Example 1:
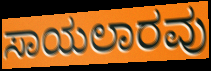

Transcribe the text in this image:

ಸಾಯಲಾರವು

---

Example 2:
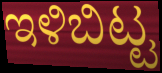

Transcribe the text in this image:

ಇಳಿಬಿಟ್ಟ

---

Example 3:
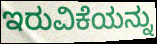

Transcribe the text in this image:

ಇರುವಿಕೆಯನ್ನು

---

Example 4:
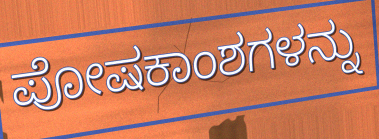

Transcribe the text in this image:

ಪೋಷಕಾಂಶಗಳನ್ನು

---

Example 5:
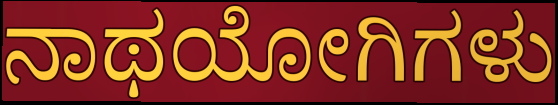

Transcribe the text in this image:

ನಾಥಯೋಗಿಗಳು